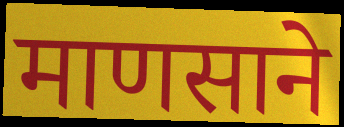
माणसाने